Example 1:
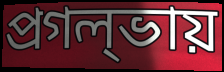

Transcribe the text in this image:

প্রগল্‌ভায়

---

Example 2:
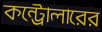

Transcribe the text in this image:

কন্ট্রোলারের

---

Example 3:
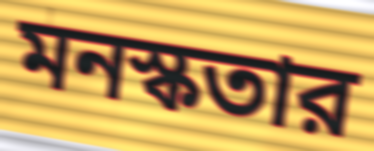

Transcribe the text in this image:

মনস্কতার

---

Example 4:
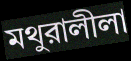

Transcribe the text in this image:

মথুরালীলা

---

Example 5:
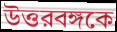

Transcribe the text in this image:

উত্তরবঙ্গকে